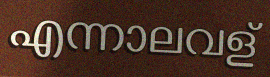
എന്നാലവള്